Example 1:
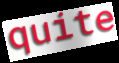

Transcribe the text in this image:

quite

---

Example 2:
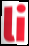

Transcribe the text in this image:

li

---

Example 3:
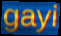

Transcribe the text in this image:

gayi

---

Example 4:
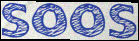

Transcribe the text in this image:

soos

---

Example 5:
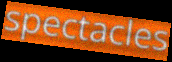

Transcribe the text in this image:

spectacles